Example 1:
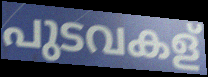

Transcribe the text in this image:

പുടവകള്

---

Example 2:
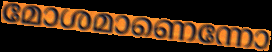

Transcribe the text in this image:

മോശമാണെന്നോ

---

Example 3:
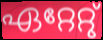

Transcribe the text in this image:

ഏറ്റേറ്റു്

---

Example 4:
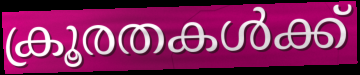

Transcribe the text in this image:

ക്രൂരതകൾക്ക്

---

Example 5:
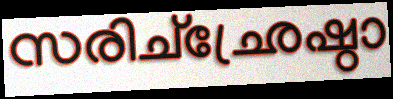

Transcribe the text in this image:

സരിച്ഛ്രേഷ്ഠാ